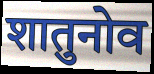
शातुनोव